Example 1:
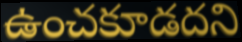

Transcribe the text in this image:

ఉంచకూడదని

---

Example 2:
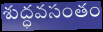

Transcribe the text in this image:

శుద్ధవసంతం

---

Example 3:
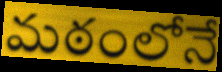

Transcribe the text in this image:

మఠంలోనే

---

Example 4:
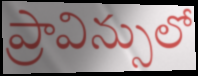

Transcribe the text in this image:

ప్రావిన్సులో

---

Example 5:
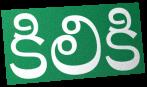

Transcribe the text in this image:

కిలికి